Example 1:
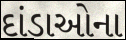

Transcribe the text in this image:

દાંડાઓના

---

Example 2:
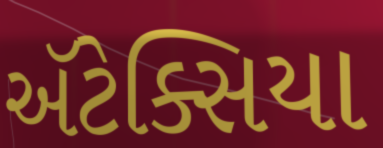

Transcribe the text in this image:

ઍટેક્સિયા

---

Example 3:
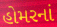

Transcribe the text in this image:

હોમરનાં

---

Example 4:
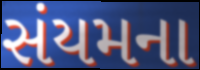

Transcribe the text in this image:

સંયમના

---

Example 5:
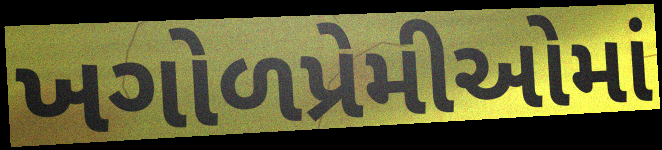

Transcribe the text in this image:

ખગોળપ્રેમીઓમાં